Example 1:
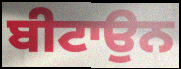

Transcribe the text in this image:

ਬੀਟਾਉਨ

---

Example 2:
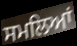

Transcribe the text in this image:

ਸਮਲਿਆਂ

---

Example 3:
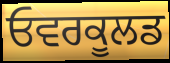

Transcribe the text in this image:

ਓਵਰਕੂਲਡ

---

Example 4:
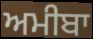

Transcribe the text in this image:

ਅਮੀਬਾ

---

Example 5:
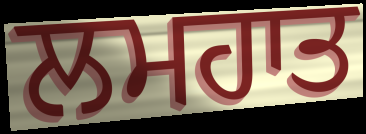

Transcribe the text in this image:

ਲਮਹਾਤ